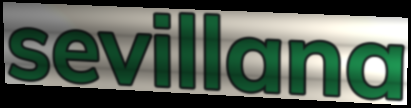
sevillana